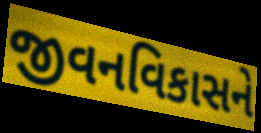
જીવનવિકાસને